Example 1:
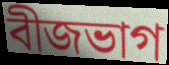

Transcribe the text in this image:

বীজভাগ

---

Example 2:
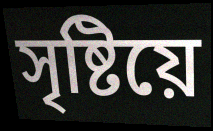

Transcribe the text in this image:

সৃষ্টিয়ে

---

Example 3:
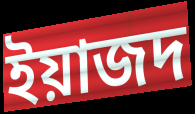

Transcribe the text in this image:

ইয়াজদ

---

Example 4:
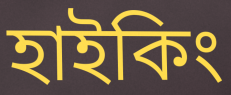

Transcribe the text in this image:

হাইকিং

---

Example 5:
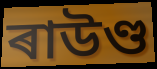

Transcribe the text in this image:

ৰাউণ্ড